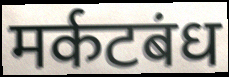
मर्कटबंध